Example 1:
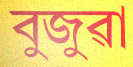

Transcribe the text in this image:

বুজুৱা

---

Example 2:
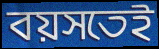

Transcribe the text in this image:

বয়সতেই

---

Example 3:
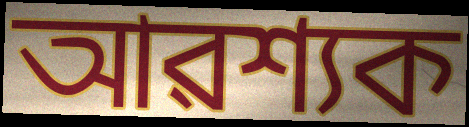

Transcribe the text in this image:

আৱশ্যক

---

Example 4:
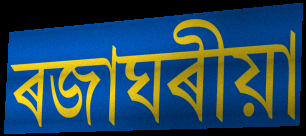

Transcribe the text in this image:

ৰজাঘৰীয়া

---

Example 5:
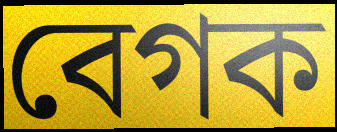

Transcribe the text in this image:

বেগক